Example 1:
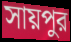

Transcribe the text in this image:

সায়পুর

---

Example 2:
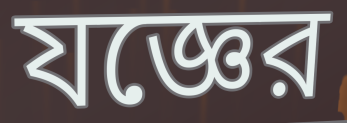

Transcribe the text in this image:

যজ্ঞের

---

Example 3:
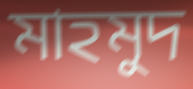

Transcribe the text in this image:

মাহমুদ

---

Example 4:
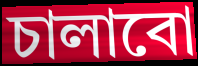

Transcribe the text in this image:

চালাবো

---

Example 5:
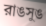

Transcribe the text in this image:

রাঙসুঙ